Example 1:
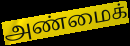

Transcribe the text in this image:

அண்மைக்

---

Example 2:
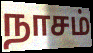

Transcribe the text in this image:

நாசம்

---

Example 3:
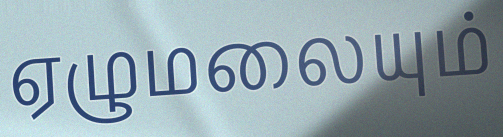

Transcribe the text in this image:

ஏழுமலையும்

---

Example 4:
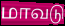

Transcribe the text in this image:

மாவடு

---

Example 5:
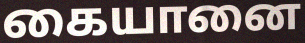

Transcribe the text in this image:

கையானை